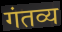
गंतव्य